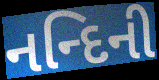
નન્દિની